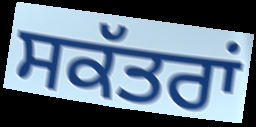
ਸਕੱਤਰਾਂ